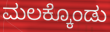
ಮಲಕ್ಕೊಂಡು